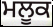
ਮਲੂਕ